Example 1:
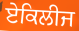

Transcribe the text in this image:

ਏਕਿਲੀਜ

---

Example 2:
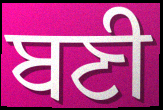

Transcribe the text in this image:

ਬਣੀ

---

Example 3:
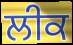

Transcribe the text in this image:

ਲੀਕ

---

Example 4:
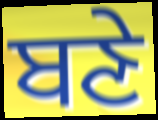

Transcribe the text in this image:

ਬਣੇ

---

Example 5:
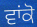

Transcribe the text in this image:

ਵਾਂਕੋ